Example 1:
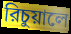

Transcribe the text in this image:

রিচুয়ালে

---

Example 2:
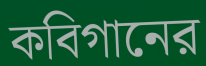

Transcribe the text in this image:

কবিগানের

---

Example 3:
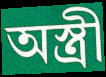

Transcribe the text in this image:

অস্ত্রী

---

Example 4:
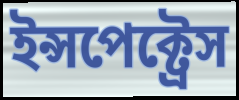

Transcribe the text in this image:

ইন্সপেক্ট্রেস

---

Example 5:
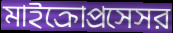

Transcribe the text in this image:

মাইক্রোপ্রসেসর